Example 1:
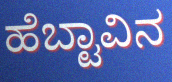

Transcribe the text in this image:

ಹೆಬ್ಟಾವಿನ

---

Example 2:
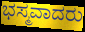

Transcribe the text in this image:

ಭಸ್ಮವಾದರು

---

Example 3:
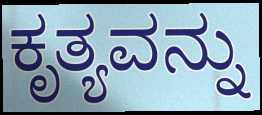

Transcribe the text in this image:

ಕೃತ್ಯವನ್ನು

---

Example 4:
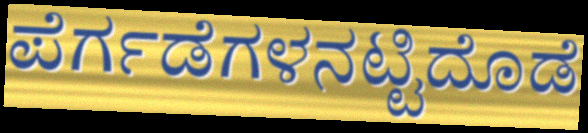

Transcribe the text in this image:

ಪೆರ್ಗಡೆಗಳನಟ್ಟಿದೊಡೆ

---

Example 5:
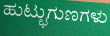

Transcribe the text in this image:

ಹುಟ್ಟುಗುಣಗಳು